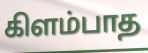
கிளம்பாத